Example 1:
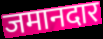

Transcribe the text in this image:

जमानदार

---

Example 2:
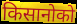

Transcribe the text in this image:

किसानोको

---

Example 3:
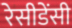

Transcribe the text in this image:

रेसीडेंसी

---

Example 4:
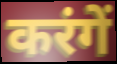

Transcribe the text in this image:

करंगें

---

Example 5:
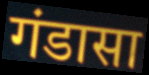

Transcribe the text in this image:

गंडासा